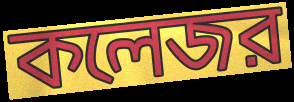
কলেজর